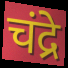
चंद्रे